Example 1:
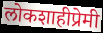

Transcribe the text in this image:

लोकशाहीप्रेमी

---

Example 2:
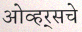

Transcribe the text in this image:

ओव्हर्सचे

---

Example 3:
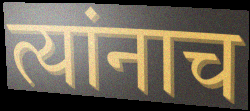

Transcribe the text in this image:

त्यांनाच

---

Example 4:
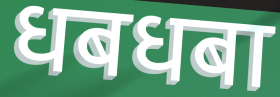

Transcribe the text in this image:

धबधबा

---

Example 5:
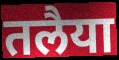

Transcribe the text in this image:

तलैया